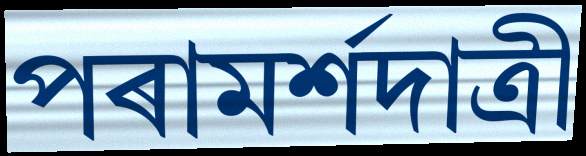
পৰামৰ্শদাত্ৰী